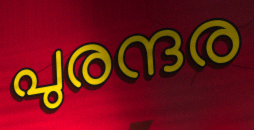
പുരന്ദര